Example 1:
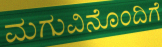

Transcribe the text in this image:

ಮಗುವಿನೊಂದಿಗೆ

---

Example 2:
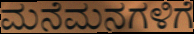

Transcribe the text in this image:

ಮನೆಮನಗಳಿಗೆ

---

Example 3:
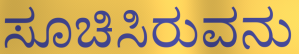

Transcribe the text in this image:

ಸೂಚಿಸಿರುವನು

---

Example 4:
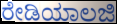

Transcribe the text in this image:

ರೇಡಿಯಾಲಜಿ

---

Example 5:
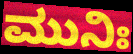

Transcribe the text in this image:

ಮುನಿಃ